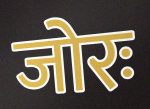
जोरः